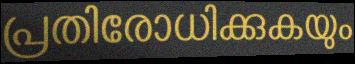
പ്രതിരോധിക്കുകയും